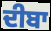
ਦੀਬਾ